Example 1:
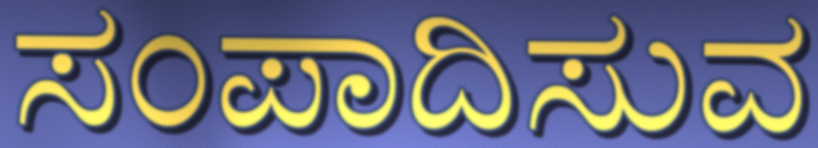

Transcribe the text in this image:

ಸಂಪಾದಿಸುವ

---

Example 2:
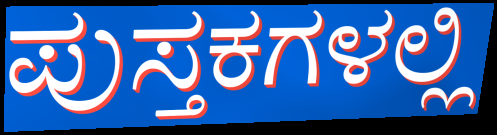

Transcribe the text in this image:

ಪುಸ್ತಕಗಳಲ್ಲಿ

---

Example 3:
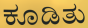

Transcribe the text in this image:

ಕೂಡಿತು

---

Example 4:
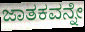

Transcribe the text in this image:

ಜಾತಕವನ್ನೇ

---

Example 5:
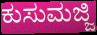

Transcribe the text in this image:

ಕುಸುಮಜ್ಜಿ